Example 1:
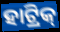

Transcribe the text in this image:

ହାଟ୍ରିକ୍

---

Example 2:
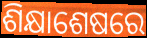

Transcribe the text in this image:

ଶିକ୍ଷାଶେଷରେ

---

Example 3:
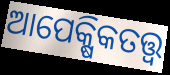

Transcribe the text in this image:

ଆପେକ୍ଷିକତତ୍ତ୍ୱ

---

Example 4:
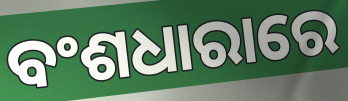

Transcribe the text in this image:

ବଂଶଧାରାରେ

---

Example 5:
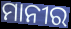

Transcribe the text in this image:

ମାନୀର